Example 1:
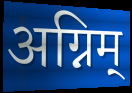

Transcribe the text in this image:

अग्निम्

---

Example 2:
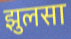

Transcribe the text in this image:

झुलसा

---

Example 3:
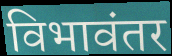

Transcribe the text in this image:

विभावंतर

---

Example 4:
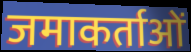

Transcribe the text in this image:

जमाकर्ताओं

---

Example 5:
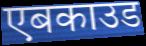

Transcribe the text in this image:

एबकाउड